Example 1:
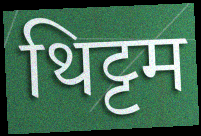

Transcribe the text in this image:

थिट्टम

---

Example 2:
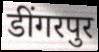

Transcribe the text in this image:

डींगरपुर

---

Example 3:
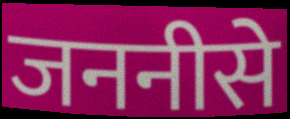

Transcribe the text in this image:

जननीसे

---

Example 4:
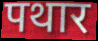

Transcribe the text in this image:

पथार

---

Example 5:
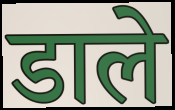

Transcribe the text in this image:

डाले